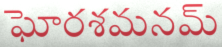
ఘోరశమనమ్